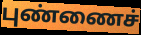
புண்ணைச்